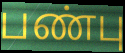
பண்பு